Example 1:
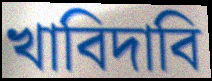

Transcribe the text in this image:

খাবিদাবি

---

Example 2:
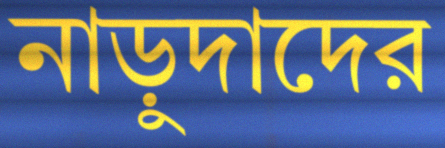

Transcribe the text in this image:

নাড়ুদাদের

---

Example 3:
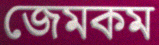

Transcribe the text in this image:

জেমকম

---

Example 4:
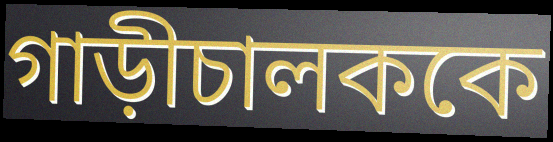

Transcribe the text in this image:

গাড়ীচালককে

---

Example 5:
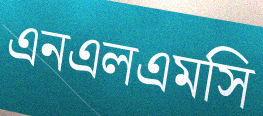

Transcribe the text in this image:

এনএলএমসি